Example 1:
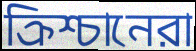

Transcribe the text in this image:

ক্রিশ্চানেরা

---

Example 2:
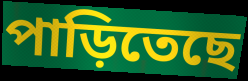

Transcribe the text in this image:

পাড়িতেছে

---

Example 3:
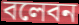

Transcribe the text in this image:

বলেবন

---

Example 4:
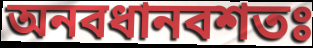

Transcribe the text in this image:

অনবধানবশতঃ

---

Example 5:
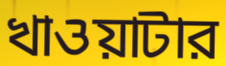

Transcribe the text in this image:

খাওয়াটার